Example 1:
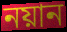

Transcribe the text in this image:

নয়ান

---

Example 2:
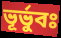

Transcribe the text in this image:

ভূর্ভুবঃ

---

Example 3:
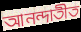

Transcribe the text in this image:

আনন্দাতীত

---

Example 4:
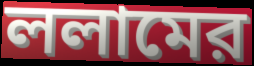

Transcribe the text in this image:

ললামের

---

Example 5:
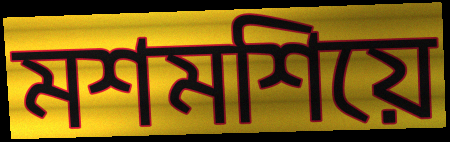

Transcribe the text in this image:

মশমশিয়ে